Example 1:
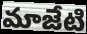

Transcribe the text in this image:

మాజేటి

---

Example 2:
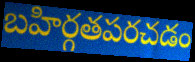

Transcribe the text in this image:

బహిర్గతపరచడం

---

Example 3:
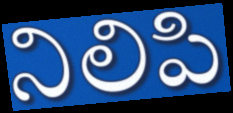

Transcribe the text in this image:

నిలిపి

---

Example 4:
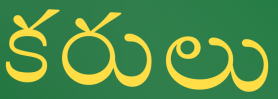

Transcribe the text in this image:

కరులు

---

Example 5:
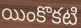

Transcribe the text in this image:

యింకొకటి